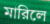
মারিলে